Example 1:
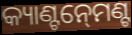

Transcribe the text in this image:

କ୍ୟାଣ୍ଟନ୍‍ମେଣ୍ଟ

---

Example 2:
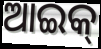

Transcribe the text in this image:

ଆଇକ୍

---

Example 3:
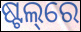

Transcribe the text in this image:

ଷ୍ଟଲ୍‌ରେ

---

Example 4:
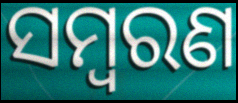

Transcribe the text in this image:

ସମ୍ୱରଣ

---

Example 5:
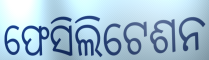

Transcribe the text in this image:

ଫେସିଲିଟେଶନ